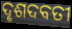
ଦୃଶଦବତୀ